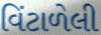
વિંટાળેલી